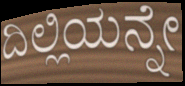
ದಿಲ್ಲಿಯನ್ನೇ